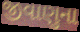
જીવાણુના